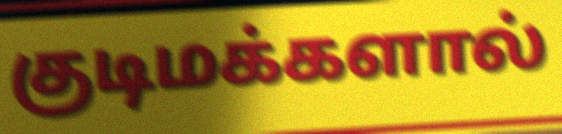
குடிமக்களால்